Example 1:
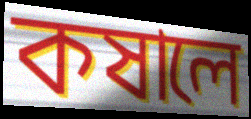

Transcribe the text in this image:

কষালে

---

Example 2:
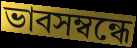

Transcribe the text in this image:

ভাবসম্বন্ধে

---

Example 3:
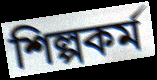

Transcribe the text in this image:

শিল্পকর্ম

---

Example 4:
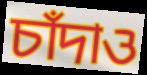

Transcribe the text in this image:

চাঁদাও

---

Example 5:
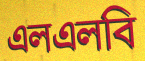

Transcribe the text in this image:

এলএলবি